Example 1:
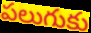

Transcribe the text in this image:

పలుగుకు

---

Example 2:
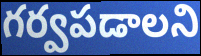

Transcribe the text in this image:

గర్వపడాలని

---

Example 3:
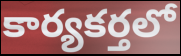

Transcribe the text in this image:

కార్యకర్తలో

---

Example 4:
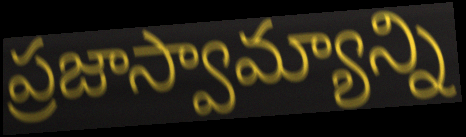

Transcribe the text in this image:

ప్రజాస్వామ్యాన్ని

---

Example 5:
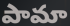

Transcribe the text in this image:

పామా